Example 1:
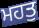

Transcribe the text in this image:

ਮਹਤੁ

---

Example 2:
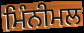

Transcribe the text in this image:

ਮਿੰਨੀਮਲ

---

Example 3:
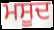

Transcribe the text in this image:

ਮਸੂਦ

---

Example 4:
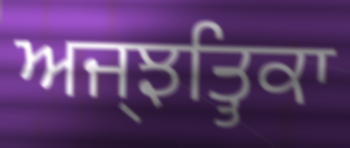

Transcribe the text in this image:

ਅਜ੍ਝਤ੍ਤਿਕਾ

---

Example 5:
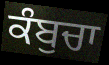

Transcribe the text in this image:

ਕੰਬੁਚਾ